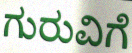
ಗುರುವಿಗೆ